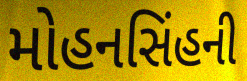
મોહનસિંહની